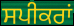
ਸਪੀਕਰਾਂ